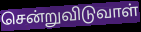
சென்றுவிடுவாள்